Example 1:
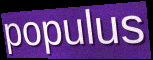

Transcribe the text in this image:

populus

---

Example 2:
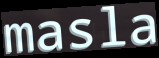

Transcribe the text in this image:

masla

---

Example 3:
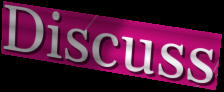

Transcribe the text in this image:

Discuss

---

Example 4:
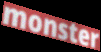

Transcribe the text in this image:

monster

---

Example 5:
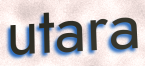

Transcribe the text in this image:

utara